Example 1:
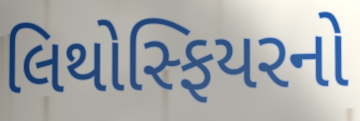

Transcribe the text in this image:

લિથોસ્ફિયરનો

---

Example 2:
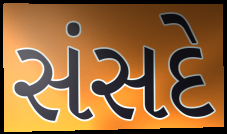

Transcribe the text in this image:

સંસદે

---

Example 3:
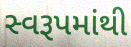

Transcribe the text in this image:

સ્વરૂપમાંથી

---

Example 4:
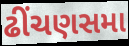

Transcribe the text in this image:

ઢીંચણસમા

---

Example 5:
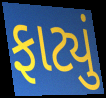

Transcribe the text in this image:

ફાટ્યું